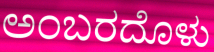
ಅಂಬರದೊಳು